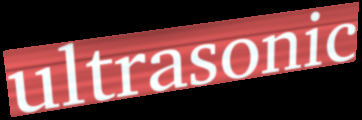
ultrasonic